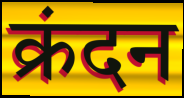
क्रंदन